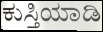
ಕುಸ್ತಿಯಾಡಿ